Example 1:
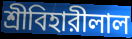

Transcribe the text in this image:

শ্রীবিহারীলাল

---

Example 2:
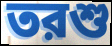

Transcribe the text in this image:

তরশু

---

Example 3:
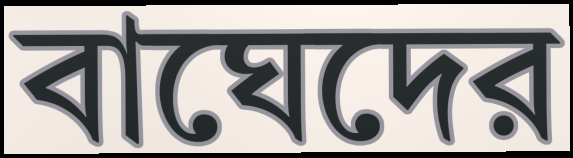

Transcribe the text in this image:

বাঘেদের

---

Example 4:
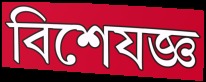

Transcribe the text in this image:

বিশেযজ্ঞ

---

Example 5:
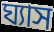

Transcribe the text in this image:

ঘ্যাস